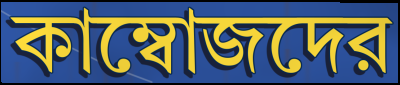
কাম্বোজদের